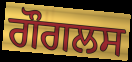
ਗੌਗਲਸ